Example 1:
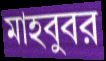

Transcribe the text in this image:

মাহবুবর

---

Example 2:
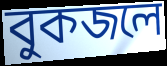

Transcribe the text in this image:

বুকজলে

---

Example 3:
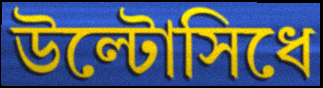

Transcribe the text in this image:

উল্টোসিধে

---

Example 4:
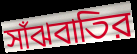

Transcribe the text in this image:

সাঁঝবাতির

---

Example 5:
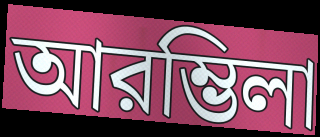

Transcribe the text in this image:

আরম্ভিলা